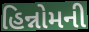
હિન્નોમની